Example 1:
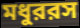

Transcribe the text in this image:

মধুররস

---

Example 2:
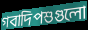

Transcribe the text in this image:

গবাদিপশুগুলো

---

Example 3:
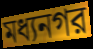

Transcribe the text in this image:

মধ্যনগর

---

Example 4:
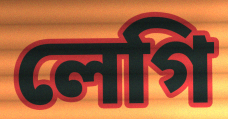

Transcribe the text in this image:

লেগি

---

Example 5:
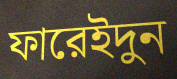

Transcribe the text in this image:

ফারেইদুন